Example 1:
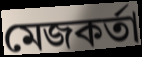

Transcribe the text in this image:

মেজকর্তা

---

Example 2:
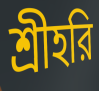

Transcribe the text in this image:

শ্রীহরি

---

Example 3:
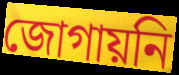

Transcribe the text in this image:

জোগায়নি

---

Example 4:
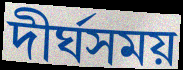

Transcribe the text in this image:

দীর্ঘসময়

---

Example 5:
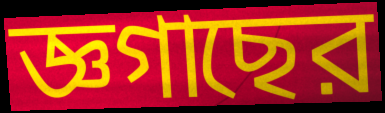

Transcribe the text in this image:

জ্ঞগাছের